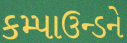
કમ્પાઉન્ડને